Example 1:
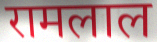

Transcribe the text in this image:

रामलाल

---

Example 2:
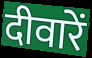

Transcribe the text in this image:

दीवारें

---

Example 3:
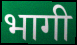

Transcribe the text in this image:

भागी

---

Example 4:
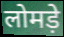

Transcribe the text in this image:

लोमड़े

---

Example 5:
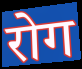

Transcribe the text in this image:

रोग